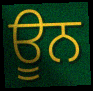
ਊਨ